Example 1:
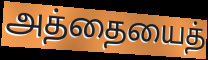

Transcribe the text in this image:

அத்தையைத்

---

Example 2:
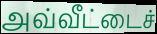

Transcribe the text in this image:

அவ்வீட்டைச்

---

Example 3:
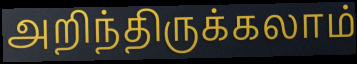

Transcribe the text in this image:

அறிந்திருக்கலாம்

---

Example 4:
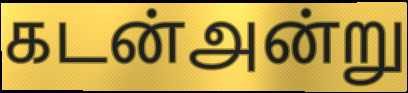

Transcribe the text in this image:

கடன்அன்று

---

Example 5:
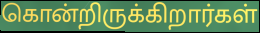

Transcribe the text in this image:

கொன்றிருக்கிறார்கள்